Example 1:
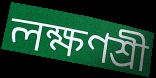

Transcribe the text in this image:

লক্ষণশ্রী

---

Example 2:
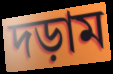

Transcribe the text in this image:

দড়াম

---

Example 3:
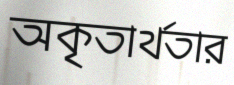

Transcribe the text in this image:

অকৃতার্থতার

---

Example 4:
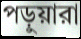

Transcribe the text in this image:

পড়ুয়ারা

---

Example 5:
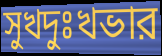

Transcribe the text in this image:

সুখদুঃখভার